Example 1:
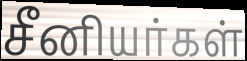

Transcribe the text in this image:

சீனியர்கள்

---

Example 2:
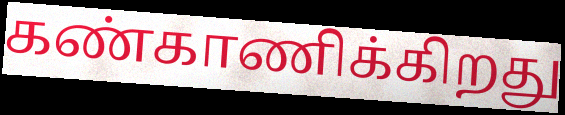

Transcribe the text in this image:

கண்காணிக்கிறது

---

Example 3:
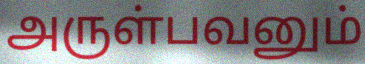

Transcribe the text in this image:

அருள்பவனும்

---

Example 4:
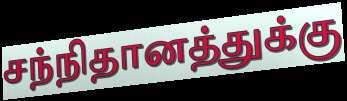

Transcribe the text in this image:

சந்நிதானத்துக்கு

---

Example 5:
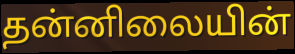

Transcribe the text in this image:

தன்னிலையின்